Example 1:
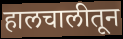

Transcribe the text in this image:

हालचालीतून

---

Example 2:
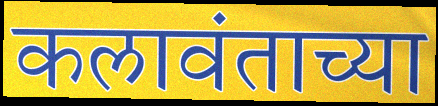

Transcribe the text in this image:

कलावंताच्या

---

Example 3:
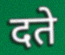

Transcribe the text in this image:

दते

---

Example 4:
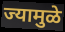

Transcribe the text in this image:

ज्यामुळे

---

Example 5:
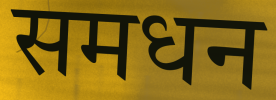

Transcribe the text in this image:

समधन